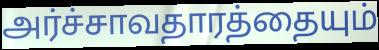
அர்ச்சாவதாரத்தையும்